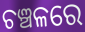
ଚଞ୍ଚଳରେ